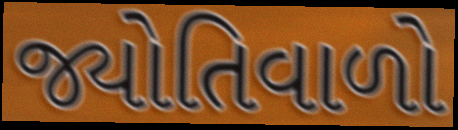
જ્યોતિવાળો